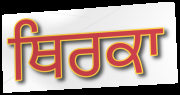
ਥਿਰਕਾ